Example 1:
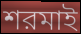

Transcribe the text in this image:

শরমাই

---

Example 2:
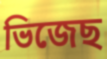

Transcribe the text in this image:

ভিজেছ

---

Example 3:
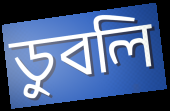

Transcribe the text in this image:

ডুবলি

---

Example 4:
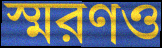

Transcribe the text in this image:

স্মরণও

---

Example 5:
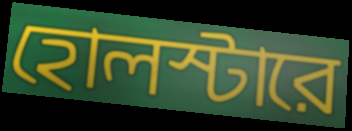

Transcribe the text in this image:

হোলস্টারে